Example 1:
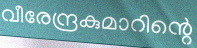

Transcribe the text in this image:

വീരേന്ദ്രകുമാറിന്റെ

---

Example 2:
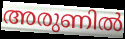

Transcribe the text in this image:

അരുണിൽ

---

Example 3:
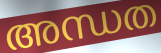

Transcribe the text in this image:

അന്ധത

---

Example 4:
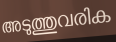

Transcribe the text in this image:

അടുത്തുവരിക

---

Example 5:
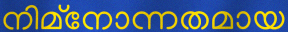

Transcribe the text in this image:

നിമ്നോന്നതമായ